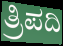
ತ್ರಿಪದಿ